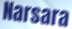
Narsara